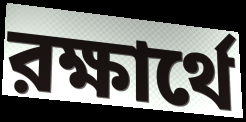
রক্ষার্থে